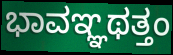
ಭಾವಞ್ಞಥತ್ತಂ